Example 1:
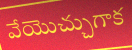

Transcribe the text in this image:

వేయొచ్చుగాక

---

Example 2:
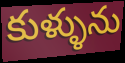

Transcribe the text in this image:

కుళ్ళును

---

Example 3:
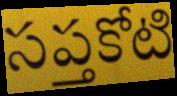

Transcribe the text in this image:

సప్తకోటి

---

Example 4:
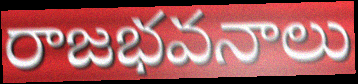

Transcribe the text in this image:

రాజభవనాలు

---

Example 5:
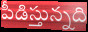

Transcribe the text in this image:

పీడిస్తున్నది